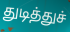
துடித்துச்